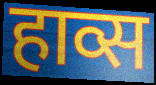
हाव्स